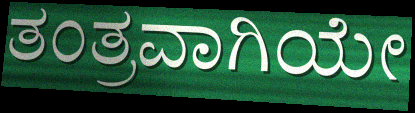
ತಂತ್ರವಾಗಿಯೇ